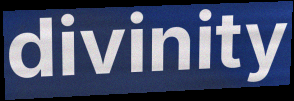
divinity